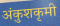
अंकुशकृमी